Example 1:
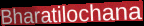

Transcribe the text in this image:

Bharatilochana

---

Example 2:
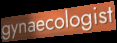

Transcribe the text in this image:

gynaecologist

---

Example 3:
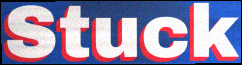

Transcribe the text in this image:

Stuck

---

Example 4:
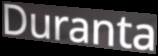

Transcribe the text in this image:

Duranta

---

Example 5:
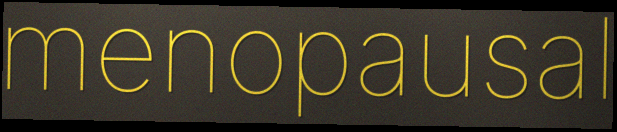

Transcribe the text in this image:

menopausal